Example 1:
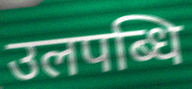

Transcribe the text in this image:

उलपब्धि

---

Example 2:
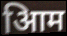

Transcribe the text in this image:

आिम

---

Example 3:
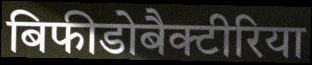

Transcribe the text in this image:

बिफीडोबैक्टीरिया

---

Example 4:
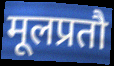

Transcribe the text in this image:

मूलप्रतौ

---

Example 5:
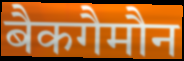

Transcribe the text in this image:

बैकगैमौन